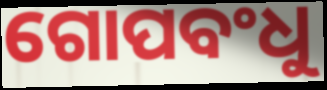
ଗୋପବଂଧୁ